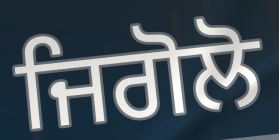
ਜਿਗੋਲੋ